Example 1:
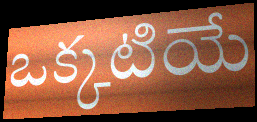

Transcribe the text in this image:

ఒక్కటియే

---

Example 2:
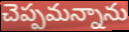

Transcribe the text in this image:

చెప్పమన్నాను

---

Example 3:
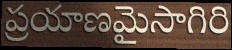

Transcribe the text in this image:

ప్రయాణమైసాగిరి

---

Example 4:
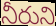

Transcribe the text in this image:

నీరుని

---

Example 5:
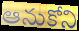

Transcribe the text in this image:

ఆనుకోని